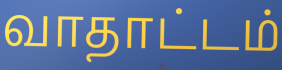
வாதாட்டம்